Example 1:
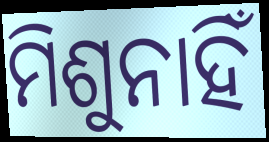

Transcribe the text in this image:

ମିଶୁନାହିଁ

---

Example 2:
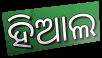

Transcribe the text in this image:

ହିଆଲ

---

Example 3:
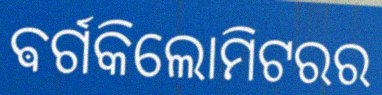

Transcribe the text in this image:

ଵର୍ଗକିଲୋମିଟରର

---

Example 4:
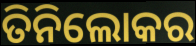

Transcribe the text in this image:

ତିନିଲୋକର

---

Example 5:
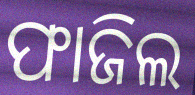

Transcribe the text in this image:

ଫାଜିଲ